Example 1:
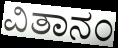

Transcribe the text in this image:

ವಿತಾನಂ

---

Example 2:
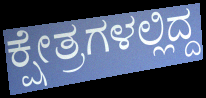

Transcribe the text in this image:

ಕ್ಷೇತ್ರಗಳಲ್ಲಿದ್ದ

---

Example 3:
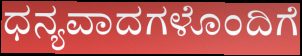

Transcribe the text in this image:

ಧನ್ಯವಾದಗಳೊಂದಿಗೆ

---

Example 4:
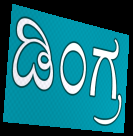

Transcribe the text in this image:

ಡಿಂಗ್ರ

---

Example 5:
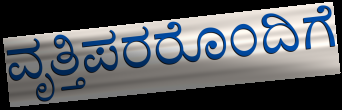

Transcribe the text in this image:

ವೃತ್ತಿಪರರೊಂದಿಗೆ